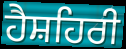
ਹੈਸ਼ਹਿਰੀ